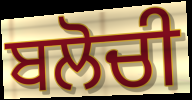
ਬਲੋਚੀ